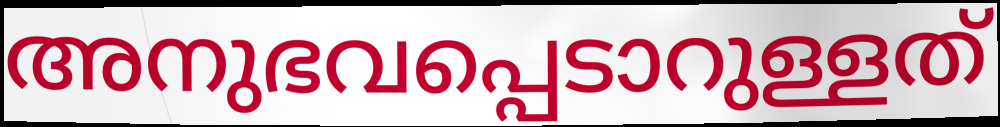
അനുഭവപ്പെടാറുള്ളത്